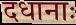
दधानाः